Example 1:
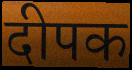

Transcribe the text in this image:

दीपक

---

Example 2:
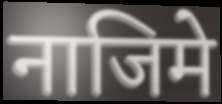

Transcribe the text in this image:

नाजिमे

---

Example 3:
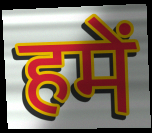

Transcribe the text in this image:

हमें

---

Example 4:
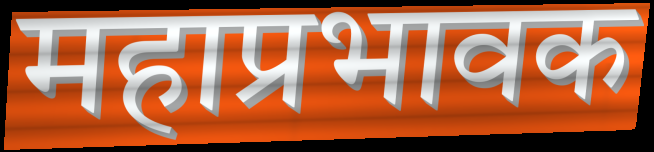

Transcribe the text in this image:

महाप्रभावक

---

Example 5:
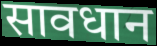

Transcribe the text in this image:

सावधान